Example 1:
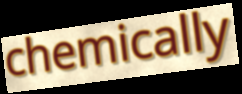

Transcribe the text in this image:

chemically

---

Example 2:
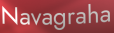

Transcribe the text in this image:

Navagraha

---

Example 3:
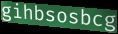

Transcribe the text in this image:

gihbsosbcg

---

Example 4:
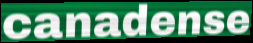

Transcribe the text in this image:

canadense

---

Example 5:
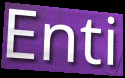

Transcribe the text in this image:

Enti